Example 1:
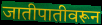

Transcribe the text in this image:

जातीपातीवरून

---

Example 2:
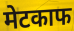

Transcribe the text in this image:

मेटकाफ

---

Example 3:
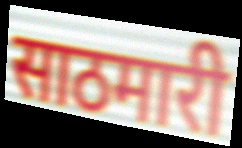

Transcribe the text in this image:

साठमारी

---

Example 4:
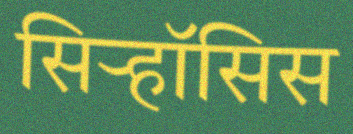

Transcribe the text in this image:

सिऱ्हॉसिस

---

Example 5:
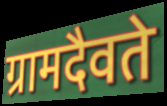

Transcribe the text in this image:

ग्रामदैवते